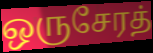
ஒருசேரத்